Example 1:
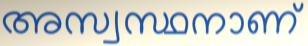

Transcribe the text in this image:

അസ്വസ്ഥനാണ്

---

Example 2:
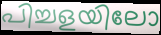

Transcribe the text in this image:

പിച്ചളയിലോ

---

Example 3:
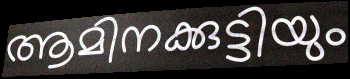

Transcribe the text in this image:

ആമിനക്കുട്ടിയും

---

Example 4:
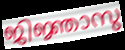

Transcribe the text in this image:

ജിജ്ഞാസു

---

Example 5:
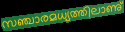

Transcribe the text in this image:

സഞ്ചാരമധ്യത്തിലാണു്